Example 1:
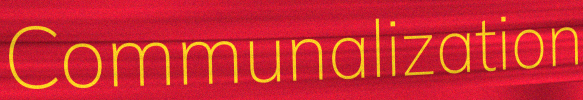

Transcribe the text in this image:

Communalization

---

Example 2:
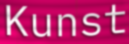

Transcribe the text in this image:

Kunst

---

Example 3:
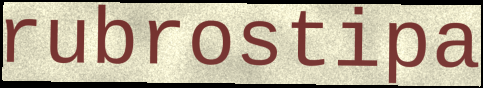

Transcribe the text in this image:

rubrostipa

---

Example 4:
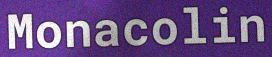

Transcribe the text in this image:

Monacolin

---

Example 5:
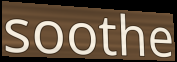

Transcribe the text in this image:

soothe